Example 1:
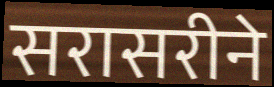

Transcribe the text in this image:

सरासरीने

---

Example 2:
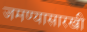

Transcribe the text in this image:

जमण्यासारखी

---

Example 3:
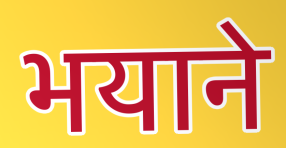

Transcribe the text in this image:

भयाने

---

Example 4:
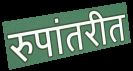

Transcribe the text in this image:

रुपांतरीत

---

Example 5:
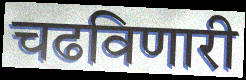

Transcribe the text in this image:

चढविणारी